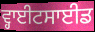
ਵ੍ਹਾਈਟਸਾਈਡ